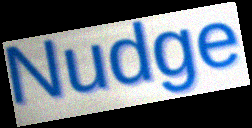
Nudge